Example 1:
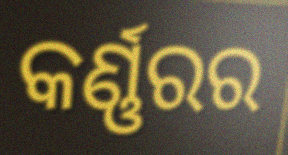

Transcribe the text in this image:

କର୍ଣ୍ଣରର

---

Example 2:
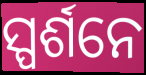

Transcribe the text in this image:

ସ୍ପର୍ଶନେ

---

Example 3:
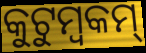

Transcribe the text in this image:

କୁଟୁମ୍ବକମ୍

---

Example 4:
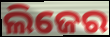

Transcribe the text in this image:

ଲିଜେର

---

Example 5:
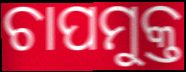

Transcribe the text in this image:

ଚାପମୁକ୍ତ